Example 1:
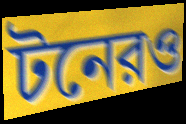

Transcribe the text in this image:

টনেরও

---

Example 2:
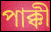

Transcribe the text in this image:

পাক্কী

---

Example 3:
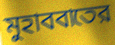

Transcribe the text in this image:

মুহাববাতের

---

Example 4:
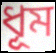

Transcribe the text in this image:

ধূম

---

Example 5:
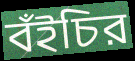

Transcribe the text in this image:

বঁইচির